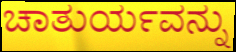
ಚಾತುರ್ಯವನ್ನು